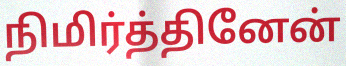
நிமிர்த்தினேன்